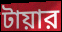
টায়ার